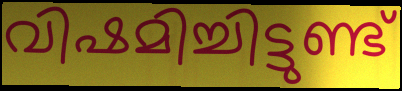
വിഷമിച്ചിട്ടുണ്ട്